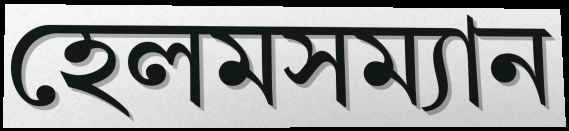
হেলমসম্যান